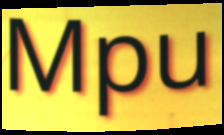
Mpu